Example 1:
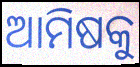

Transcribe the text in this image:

ଆମିଷକୁ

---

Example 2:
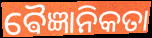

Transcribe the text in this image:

ଵୈଜ୍ଞାନିକତା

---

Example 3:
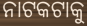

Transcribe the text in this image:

ନାଟକଟାକୁ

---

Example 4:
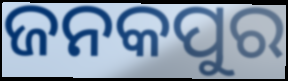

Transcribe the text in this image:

ଜନକପୁର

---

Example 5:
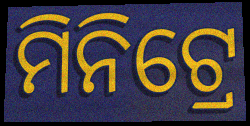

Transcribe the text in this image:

ମିନିଟ୍ରେ